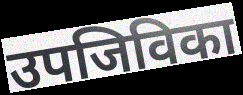
उपजिविका